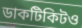
ডাকটিকিটও